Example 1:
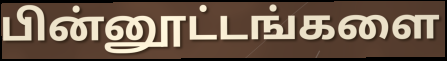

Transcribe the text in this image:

பின்னூட்டங்களை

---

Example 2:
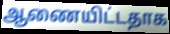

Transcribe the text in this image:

ஆணையிட்டதாக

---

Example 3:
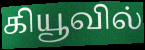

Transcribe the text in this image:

கியூவில்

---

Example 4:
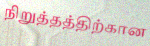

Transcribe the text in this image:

நிறுத்தத்திற்கான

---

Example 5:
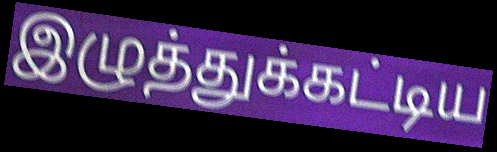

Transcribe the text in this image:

இழுத்துக்கட்டிய